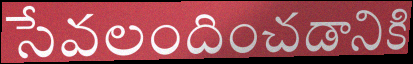
సేవలందించడానికి